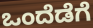
ಒಂದೆಡೆಗೆ